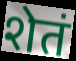
शेतं